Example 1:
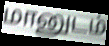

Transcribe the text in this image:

மானுடம்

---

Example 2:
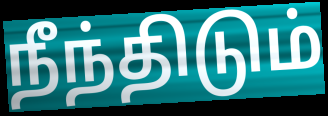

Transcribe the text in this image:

நீந்திடும்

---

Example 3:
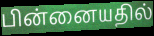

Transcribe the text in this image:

பின்னையதில்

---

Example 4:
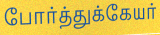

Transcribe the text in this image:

போர்த்துக்கேயர்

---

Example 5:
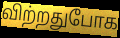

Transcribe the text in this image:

விற்றதுபோக